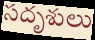
సదృశులు